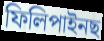
ফিলিপাইনছ